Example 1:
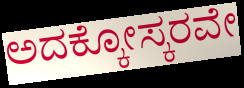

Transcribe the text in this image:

ಅದಕ್ಕೋಸ್ಕರವೇ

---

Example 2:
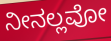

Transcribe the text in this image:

ನೀನಲ್ಲವೋ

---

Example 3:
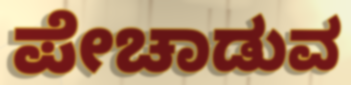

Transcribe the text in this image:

ಪೇಚಾಡುವ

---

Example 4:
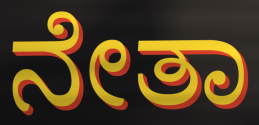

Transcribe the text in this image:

ನೇತಾ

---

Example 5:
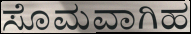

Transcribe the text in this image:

ಸೊಮವಾಗಿಹ